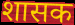
शासक